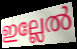
ഇല്ലേൽ